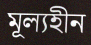
মূল্যহীন